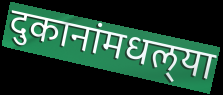
दुकानांमधल्या